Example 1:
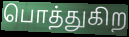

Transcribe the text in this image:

பொத்துகிற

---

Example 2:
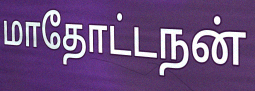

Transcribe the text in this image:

மாதோட்டநன்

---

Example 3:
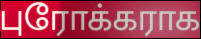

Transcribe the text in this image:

புரோக்கராக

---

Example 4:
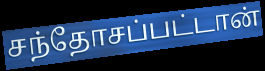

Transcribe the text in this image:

சந்தோசப்பட்டான்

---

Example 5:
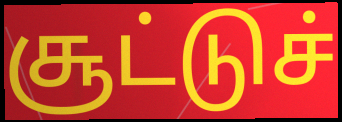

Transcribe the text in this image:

சூட்டுச்